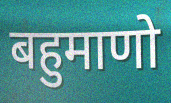
बहुमाणो